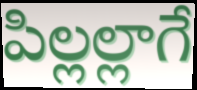
పిల్లల్లాగే